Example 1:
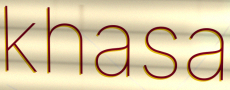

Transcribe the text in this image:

khasa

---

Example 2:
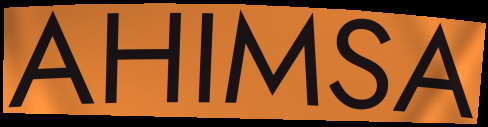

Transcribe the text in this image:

AHIMSA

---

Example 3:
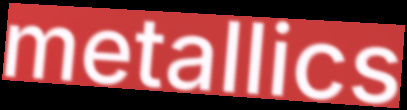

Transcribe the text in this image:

metallics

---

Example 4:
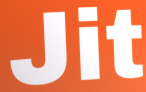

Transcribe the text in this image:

Jit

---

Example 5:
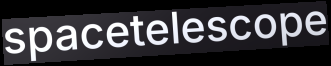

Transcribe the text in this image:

spacetelescope